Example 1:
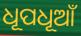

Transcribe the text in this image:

ଧୂପଧୂଆଁ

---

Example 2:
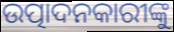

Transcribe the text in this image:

ଉତ୍ପାଦନକାରୀଙ୍କୁ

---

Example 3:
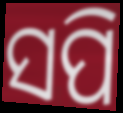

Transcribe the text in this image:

ସପି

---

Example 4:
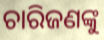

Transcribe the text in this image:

ଚାରିଜଣଙ୍କୁ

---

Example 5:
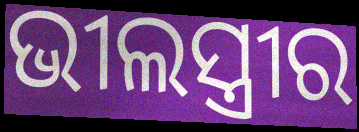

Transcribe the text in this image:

ଭୀଲସ୍ତ୍ରୀର